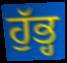
ਹੁੱਭ੍ਹ